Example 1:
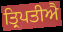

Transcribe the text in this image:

ਤ੍ਰਿਪਤੀਐ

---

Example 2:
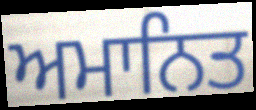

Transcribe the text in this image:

ਅਮਾਨਿਤ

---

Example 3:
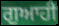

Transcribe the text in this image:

ਗੁਆਹੀ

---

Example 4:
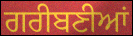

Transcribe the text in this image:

ਗਰੀਬਣੀਆਂ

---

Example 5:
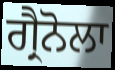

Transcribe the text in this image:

ਗ੍ਰੈਨੋਲਾ